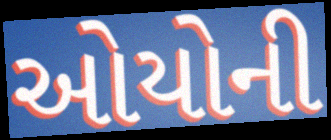
ઓયોની